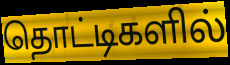
தொட்டிகளில்